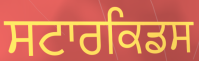
ਸਟਾਰਕਿਡਸ